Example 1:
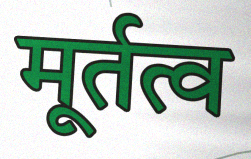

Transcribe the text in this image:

मूर्तत्व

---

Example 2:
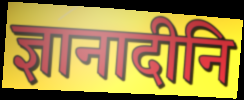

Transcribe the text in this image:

ज्ञानादीनि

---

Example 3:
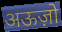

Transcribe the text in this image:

अऊज़ो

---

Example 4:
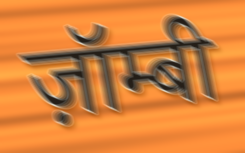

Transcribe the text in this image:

ज़ॉम्बी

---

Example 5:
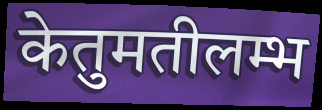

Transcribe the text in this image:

केतुमतीलम्भ